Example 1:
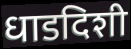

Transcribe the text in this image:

धाडदिशी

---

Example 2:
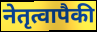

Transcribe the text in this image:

नेतृत्वापैकी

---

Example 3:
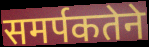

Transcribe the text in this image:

समर्पकतेने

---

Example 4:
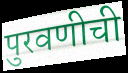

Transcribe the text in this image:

पुरवणीची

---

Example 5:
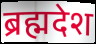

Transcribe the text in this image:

ब्रह्मदेश